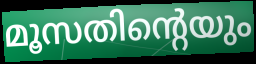
മൂസതിന്റെയും